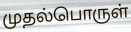
முதல்பொருள்